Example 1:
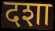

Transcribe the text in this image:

दशा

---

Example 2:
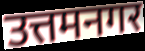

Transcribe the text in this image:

उत्तमनगर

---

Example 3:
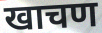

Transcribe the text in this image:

खाचण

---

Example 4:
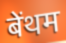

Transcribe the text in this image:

बेंथम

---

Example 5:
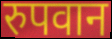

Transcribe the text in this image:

रुपवान